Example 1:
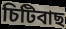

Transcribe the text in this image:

চিটিবাছ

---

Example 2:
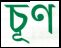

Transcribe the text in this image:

চূণ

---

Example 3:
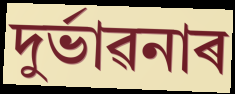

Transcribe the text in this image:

দুৰ্ভাৱনাৰ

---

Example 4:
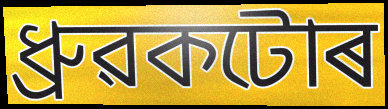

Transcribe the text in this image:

ধ্ৰুৱকটোৰ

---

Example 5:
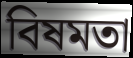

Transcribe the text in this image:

বিষমতা